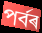
পৰ্বৰ